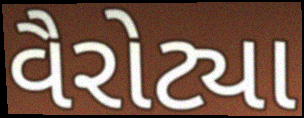
વૈરોટ્યા